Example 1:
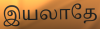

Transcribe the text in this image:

இயலாதே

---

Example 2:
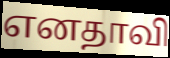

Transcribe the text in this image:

எனதாவி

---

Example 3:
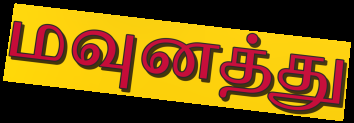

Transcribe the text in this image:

மவுனத்து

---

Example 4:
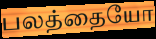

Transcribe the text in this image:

பலத்தையோ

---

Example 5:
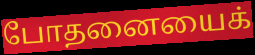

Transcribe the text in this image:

போதனையைக்